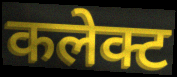
कलेक्ट